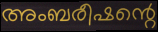
അംബരീഷന്റെ